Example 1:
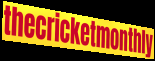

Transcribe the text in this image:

thecricketmonthly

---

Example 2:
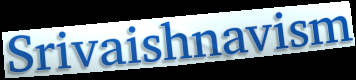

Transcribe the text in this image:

Srivaishnavism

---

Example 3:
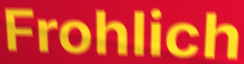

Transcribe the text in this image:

Frohlich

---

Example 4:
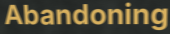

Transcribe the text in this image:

Abandoning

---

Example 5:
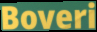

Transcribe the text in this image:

Boveri